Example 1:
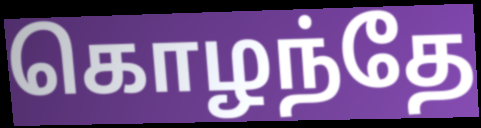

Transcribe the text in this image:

கொழந்தே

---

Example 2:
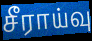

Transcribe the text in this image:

சீராய்வு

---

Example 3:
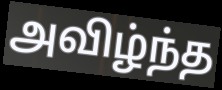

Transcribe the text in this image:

அவிழ்ந்த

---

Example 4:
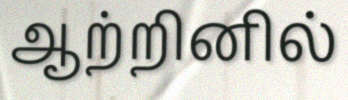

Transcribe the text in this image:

ஆற்றினில்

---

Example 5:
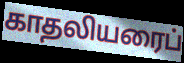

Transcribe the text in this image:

காதலியரைப்